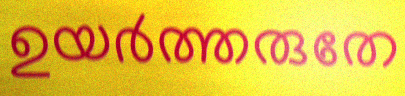
ഉയർത്തരുതേ